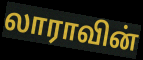
லாராவின்